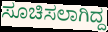
ಸೂಚಿಸಲಾಗಿದ್ದ